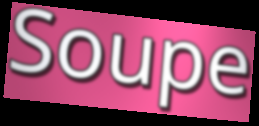
Soupe